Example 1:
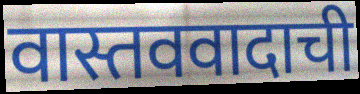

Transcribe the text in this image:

वास्तववादाची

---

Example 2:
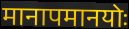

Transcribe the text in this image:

मानापमानयोः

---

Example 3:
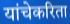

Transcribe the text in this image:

यांचेकरिता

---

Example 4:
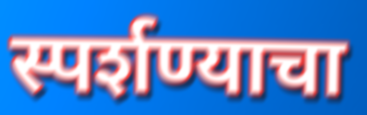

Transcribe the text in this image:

स्पर्शण्याचा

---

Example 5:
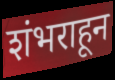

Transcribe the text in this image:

शंभराहून